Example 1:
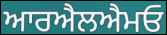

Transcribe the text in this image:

ਆਰਐਲਐਮਓ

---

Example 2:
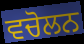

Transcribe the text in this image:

ਵਚੋਲਨ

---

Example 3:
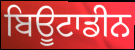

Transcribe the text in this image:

ਬਿਊਟਾਡੀਨ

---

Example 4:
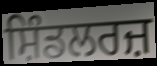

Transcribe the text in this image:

ਸ਼ਿੰਡਲਰਜ਼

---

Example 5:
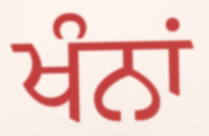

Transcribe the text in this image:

ਖੰਨਾਂ